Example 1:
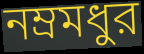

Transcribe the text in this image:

নম্রমধুর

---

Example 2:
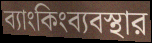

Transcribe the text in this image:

ব্যাংকিংব্যবস্থার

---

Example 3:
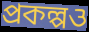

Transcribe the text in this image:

প্রকল্পও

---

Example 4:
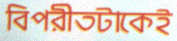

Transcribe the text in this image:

বিপরীতটাকেই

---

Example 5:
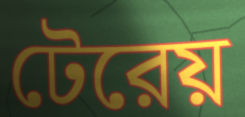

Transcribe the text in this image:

টেরেয়